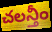
చలన్తీం